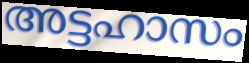
അട്ടഹാസം